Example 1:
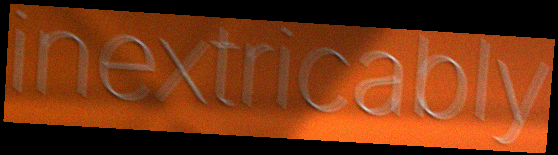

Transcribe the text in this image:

inextricably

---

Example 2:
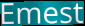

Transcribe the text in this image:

Emest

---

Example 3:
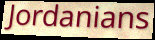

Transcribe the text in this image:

Jordanians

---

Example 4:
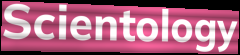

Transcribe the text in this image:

Scientology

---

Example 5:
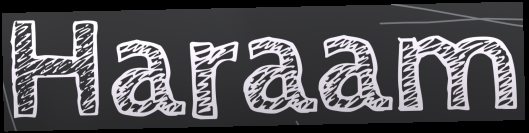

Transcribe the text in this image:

Haraam